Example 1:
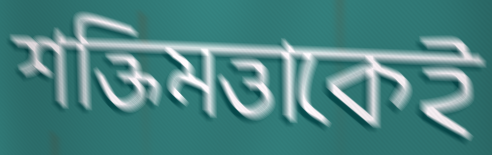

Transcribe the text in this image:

শক্তিমত্তাকেই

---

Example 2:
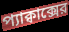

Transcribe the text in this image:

প্যাক্বাক্সের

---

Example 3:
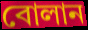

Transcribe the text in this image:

বোলান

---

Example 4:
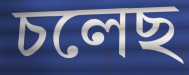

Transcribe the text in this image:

চলেছ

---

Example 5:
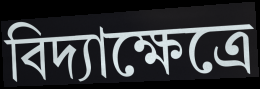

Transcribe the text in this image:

বিদ্যাক্ষেত্রে